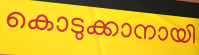
കൊടുക്കാനായി